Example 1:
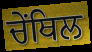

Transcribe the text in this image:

ਚੇਂਥਿਲ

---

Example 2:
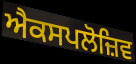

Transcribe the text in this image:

ਐਕਸਪਲੋਜ਼ਿਵ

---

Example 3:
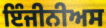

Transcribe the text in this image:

ਇੰਜੀਨੀਅਸ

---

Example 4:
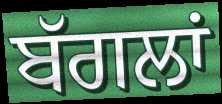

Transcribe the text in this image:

ਬੱਗਲਾਂ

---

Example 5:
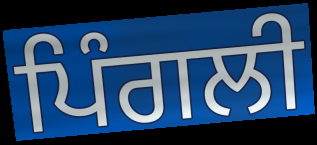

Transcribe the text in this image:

ਪਿੰਗਲੀ